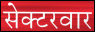
सेक्टरवार